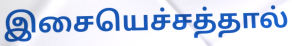
இசையெச்சத்தால்